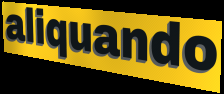
aliquando